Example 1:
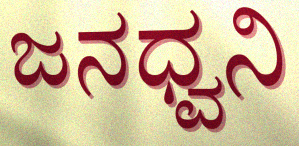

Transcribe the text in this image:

ಜನಧ್ವನಿ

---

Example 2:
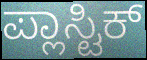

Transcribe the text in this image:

ಪ್ಲಾಸ್ಟಿಕ್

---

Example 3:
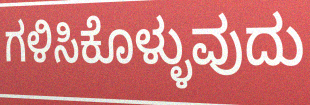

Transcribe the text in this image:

ಗಳಿಸಿಕೊಳ್ಳುವುದು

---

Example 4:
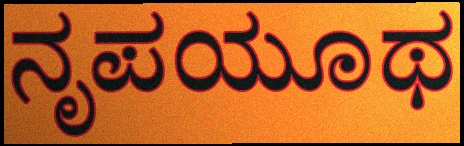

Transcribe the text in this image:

ನೃಪಯೂಥ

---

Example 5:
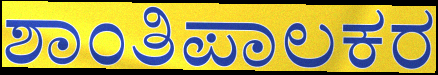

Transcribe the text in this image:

ಶಾಂತಿಪಾಲಕರ